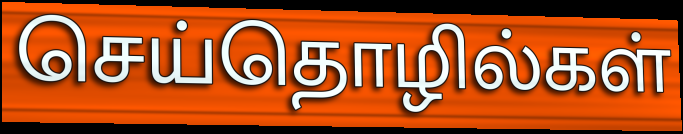
செய்தொழில்கள்